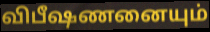
விபீஷணனையும்